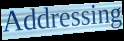
Addressing